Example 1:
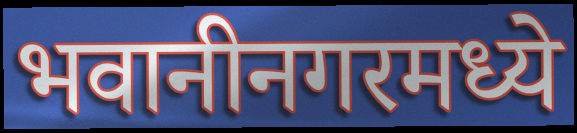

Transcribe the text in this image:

भवानीनगरमध्ये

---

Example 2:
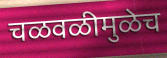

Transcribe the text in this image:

चळवळीमुळेच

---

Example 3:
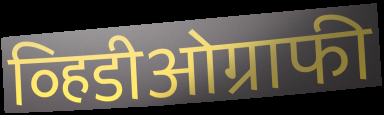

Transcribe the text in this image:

व्हिडीओग्राफी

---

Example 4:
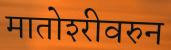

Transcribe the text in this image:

मातोश्रीवरुन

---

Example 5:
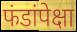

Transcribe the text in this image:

फंडांपेक्षा